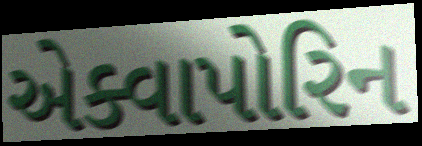
એક્વાપોરિન